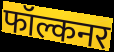
फॉल्कनर